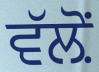
ਵੱਲ਼ੋਂ